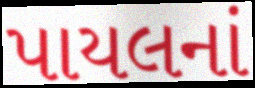
પાયલનાં